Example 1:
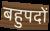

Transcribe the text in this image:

बहुपदों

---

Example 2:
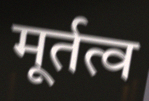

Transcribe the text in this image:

मूर्तत्व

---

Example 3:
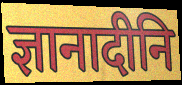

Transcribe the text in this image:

ज्ञानादीनि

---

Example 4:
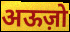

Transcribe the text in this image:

अऊज़ो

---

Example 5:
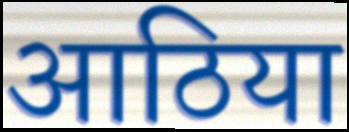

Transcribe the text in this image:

आठिया